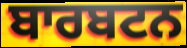
ਬਾਰਬਟਨ